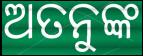
ଅତନୁଙ୍କ